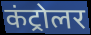
कंट्रोलर